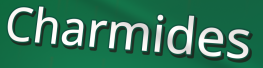
Charmides